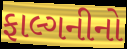
ફાલ્ગનીનો